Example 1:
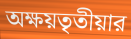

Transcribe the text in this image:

অক্ষয়তৃতীয়ার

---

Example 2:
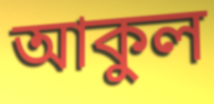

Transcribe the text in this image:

আকুল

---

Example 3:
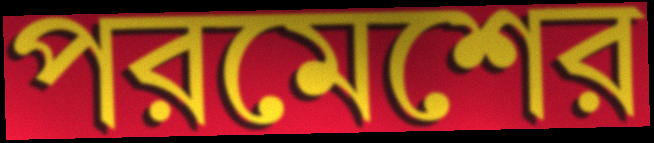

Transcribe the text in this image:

পরমেশের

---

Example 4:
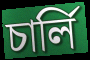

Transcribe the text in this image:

চার্লি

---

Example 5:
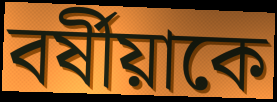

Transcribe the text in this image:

বর্ষীয়াকে